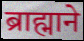
ब्राह्माने